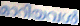
മാറിയവൾ